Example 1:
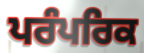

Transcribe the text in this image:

ਪਰੰਪਰਿਕ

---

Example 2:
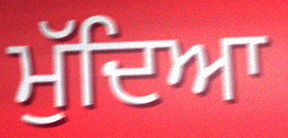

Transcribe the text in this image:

ਮੁੱਦਿਆ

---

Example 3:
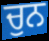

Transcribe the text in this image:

ਚੁਨ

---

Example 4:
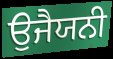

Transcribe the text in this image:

ਉਜੈਯਨੀ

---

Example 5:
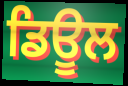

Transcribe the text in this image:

ਡਿਊਲ